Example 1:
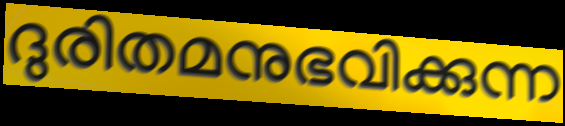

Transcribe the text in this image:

ദുരിതമനുഭവിക്കുന്ന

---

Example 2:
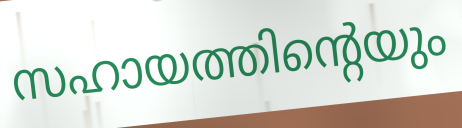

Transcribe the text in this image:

സഹായത്തിന്റെയും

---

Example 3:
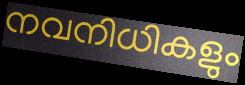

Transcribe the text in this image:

നവനിധികളും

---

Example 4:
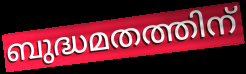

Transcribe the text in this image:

ബുദ്ധമതത്തിന്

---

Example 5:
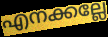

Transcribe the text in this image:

എനക്കല്ലേ